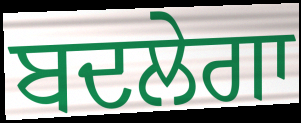
ਬਦਲੇਗਾ